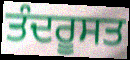
ਤੰਦਰੂਸਤ